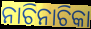
ନାଚିନାଚିକା